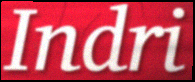
Indri